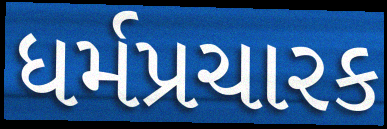
ધર્મપ્રચારક